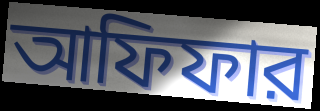
আফিফার